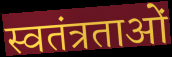
स्वतंत्रताओं